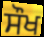
ਸੌਖ